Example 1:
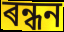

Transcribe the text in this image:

ৰন্ধন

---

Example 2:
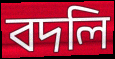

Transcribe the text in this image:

বদলি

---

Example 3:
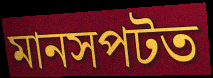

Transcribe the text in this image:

মানসপটত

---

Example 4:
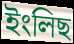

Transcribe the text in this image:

ইংলিছ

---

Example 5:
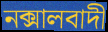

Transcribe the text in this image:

নক্সালবাদী